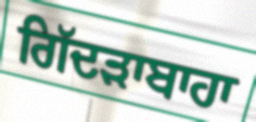
ਗਿੱਦੜਾਬਾਹਾ